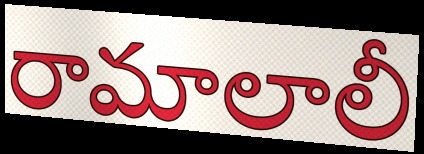
రామాలాలీ